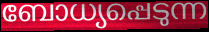
ബോധ്യപ്പെടുന്ന